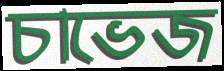
চাভেজ